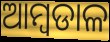
ଆମ୍ବଡାଳ